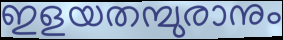
ഇളയതമ്പുരാനും